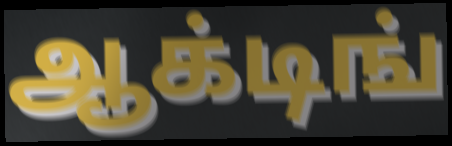
ஆக்டிங்